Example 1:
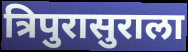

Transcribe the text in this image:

त्रिपुरासुराला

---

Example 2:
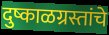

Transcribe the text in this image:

दुष्काळग्रस्तांचे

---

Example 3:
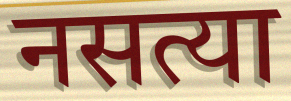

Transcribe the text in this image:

नसत्या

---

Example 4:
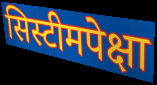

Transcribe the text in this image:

सिस्टीमपेक्षा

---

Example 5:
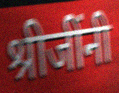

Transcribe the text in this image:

श्रीजींनी